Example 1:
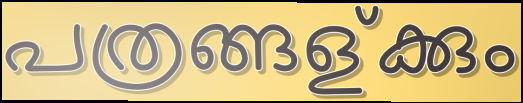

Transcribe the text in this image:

പത്രങ്ങള്ക്കും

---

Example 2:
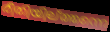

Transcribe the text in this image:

രീതിയില്ത്തന്നെ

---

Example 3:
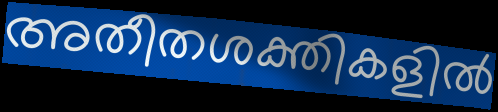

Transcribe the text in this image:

അതീതശക്തികളിൽ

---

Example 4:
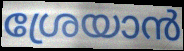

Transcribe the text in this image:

ശ്രേയാൻ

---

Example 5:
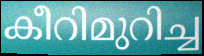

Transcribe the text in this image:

കീറിമുറിച്ച